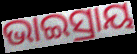
ଭାଇସ୍ରାୟ